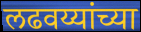
लढवय्यांच्या